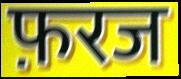
फ़रज